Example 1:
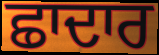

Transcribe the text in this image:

ਛਾਦਾਰ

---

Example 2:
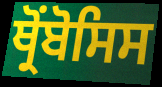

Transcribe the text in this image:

ਥ੍ਰੋਂਬੋਸਿਸ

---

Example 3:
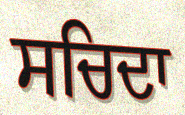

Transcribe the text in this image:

ਸਚਿਦਾ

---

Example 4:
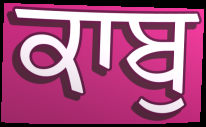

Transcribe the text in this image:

ਕਾਬੁ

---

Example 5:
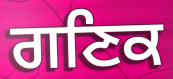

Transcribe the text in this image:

ਗਣਿਕ